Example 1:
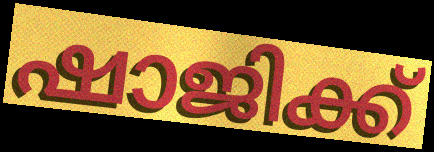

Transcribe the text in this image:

ഷാജിക്ക്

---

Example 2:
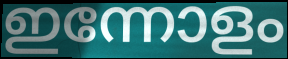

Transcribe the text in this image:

ഇന്നോളം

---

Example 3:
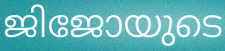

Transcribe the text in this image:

ജിജോയുടെ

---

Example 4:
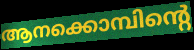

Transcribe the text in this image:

ആനക്കൊമ്പിന്റെ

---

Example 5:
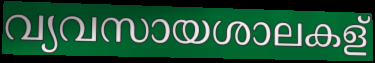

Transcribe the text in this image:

വ്യവസായശാലകള്